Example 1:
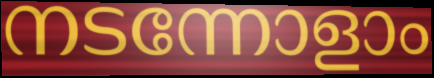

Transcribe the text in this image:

നടന്നോളാം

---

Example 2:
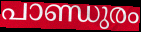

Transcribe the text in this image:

പാണ്ഡുരം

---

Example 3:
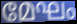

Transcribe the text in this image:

മേഘം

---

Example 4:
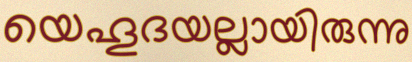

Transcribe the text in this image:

യെഹൂദയല്ലായിരുന്നു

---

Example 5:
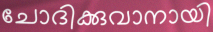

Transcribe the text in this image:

ചോദിക്കുവാനായി